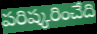
పరిష్కరించేది